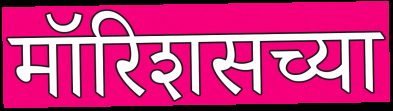
मॉरिशसच्या